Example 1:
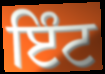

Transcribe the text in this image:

ਇੰਟ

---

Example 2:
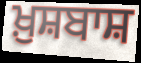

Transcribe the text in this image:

ਖ਼ੁਸ਼ਬਾਸ਼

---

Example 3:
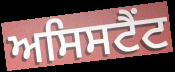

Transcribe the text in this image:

ਅਸਿਸਟੈਂਟ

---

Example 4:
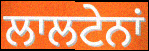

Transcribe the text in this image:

ਲਾਲਟੇਨਾਂ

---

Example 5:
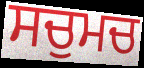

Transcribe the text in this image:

ਸਚੁਮਚ